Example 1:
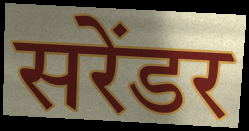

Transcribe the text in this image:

सरेंडर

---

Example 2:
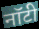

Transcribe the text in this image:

नॉटी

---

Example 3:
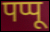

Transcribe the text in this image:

पप्पू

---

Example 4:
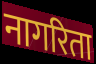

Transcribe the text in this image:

नागरिता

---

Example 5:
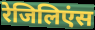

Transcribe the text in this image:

रेजिलिएंस